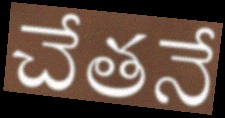
చేతనే